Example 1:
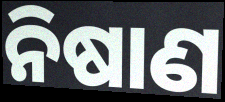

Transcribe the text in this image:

ନିଷାଣ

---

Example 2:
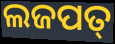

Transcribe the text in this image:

ଲଜପତ୍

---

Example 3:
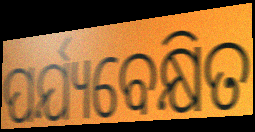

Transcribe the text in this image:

ପର୍ଯ୍ୟବେକ୍ଷିତ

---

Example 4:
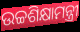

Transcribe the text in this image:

ଉଚ୍ଚଶିକ୍ଷାମନ୍ତ୍ରୀ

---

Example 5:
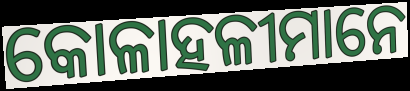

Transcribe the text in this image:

କୋଳାହଳୀମାନେ